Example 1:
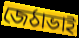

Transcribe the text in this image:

জেঠাভাই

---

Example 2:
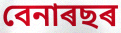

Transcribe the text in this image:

বেনাৰছৰ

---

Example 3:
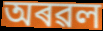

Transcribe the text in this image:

অৰৱল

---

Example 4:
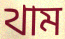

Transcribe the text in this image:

থাম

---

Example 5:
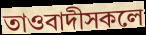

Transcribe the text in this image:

তাওবাদীসকলে